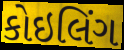
કોઇલિંગ